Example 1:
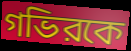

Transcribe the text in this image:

গভিরকে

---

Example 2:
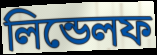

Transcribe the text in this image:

লিন্ডেলফ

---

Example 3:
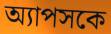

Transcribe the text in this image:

অ্যাপসকে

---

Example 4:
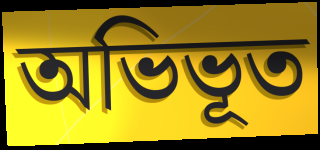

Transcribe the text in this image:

অভিভূত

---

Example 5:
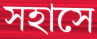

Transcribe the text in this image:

সহাসে